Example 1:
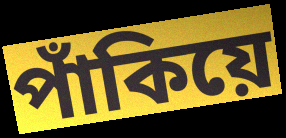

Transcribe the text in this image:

পাঁকিয়ে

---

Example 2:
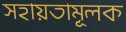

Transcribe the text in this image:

সহায়তামূলক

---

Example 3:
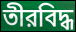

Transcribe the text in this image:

তীরবিদ্ধ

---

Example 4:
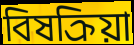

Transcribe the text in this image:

বিষক্রিয়া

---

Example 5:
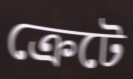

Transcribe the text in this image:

ক্রেটে